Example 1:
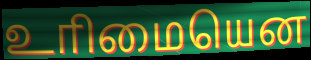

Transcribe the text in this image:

உரிமையென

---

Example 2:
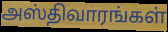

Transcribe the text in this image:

அஸ்திவாரங்கள்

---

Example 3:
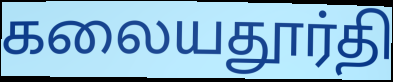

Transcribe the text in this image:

கலையதூர்தி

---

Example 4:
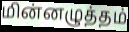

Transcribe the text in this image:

மின்னழுத்தம்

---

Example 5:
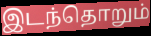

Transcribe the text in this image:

இடந்தொறும்